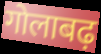
गोलाबढ़